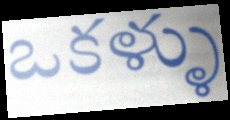
ఒకళ్ళు